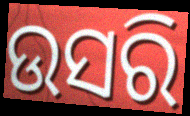
ଉସରି